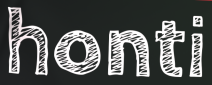
honti